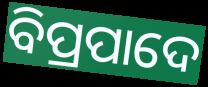
ବିପ୍ରପାଦେ